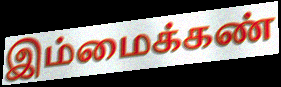
இம்மைக்கண்